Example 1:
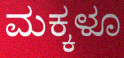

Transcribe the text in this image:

ಮಕ್ಕಳೂ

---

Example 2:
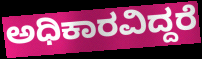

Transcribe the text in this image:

ಅಧಿಕಾರವಿದ್ದರೆ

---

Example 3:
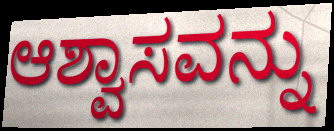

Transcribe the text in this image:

ಆಶ್ವಾಸವನ್ನು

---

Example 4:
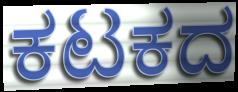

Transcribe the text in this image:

ಕಟಕದ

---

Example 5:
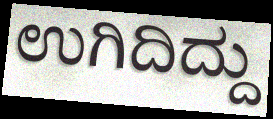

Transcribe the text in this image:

ಉಗಿದಿದ್ದು